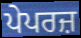
ਪੇਪਰਜ਼